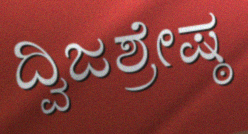
ದ್ವಿಜಶ್ರೇಷ್ಠ